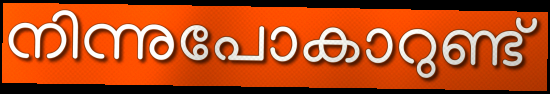
നിന്നുപോകാറുണ്ട്